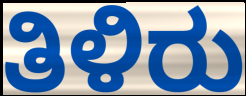
ತಿಳಿರು